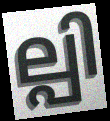
ല്പി